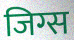
जिग्स